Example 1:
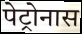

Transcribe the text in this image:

पेट्रोनास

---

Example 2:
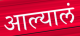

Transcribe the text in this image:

आल्यालं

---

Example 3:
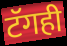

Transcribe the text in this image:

टॅगही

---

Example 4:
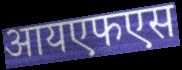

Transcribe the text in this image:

आयएफएस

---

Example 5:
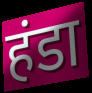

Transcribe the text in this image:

हंडा